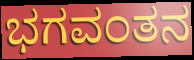
ಭಗವಂತನ